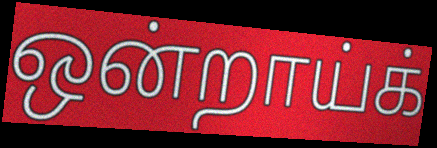
ஒன்றாய்க்